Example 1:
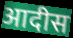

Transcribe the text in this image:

आदीस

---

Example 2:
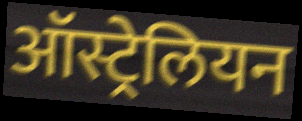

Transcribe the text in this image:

ऑस्ट्रेलियन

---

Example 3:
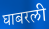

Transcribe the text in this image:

घाबरली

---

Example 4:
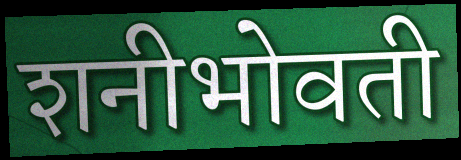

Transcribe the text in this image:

शनीभोवती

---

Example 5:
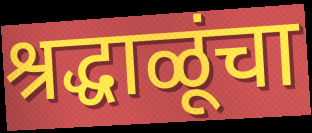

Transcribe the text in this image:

श्रद्धाळूंचा